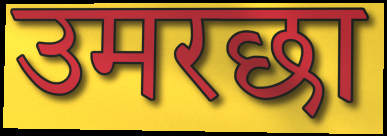
उमरछा